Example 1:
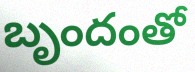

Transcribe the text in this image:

బృందంతో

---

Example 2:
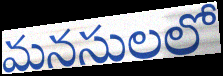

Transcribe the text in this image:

మనసులలో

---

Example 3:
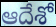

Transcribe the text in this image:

ఆదేశో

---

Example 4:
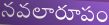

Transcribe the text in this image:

నవలారూపం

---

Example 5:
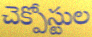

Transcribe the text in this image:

చెక్పోస్టుల